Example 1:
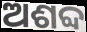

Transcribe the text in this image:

ଅଶବ୍ଦ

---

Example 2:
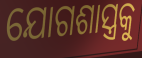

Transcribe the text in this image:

ଯୋଗଶାସ୍ତ୍ରକୁ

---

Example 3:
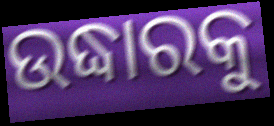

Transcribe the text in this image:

ଉଦ୍ଧାରକୁ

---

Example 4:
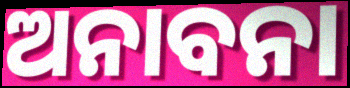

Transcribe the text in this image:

ଅନାବନା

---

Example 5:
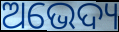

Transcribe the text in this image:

ଅଭେଦ୍ୟ